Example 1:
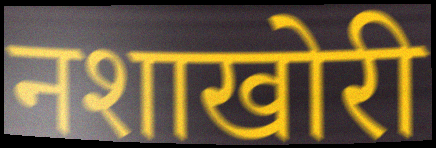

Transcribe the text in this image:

नशाखोरी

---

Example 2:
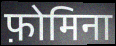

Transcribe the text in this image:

फ़ोमिना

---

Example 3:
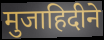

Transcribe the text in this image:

मुजाहिदीने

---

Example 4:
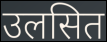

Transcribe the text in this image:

उलसित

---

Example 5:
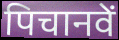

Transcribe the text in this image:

पिचानवें